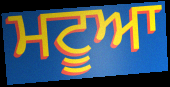
ਮਟੂਆ